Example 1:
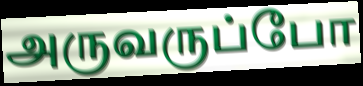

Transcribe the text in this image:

அருவருப்போ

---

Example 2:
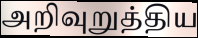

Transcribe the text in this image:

அறிவுறுத்திய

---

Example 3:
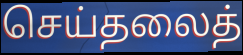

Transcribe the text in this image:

செய்தலைத்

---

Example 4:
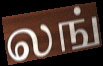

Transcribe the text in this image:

லங்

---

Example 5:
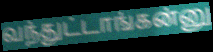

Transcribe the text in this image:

வந்துட்டாங்கன்னு